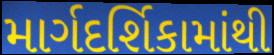
માર્ગદર્શિકામાંથી